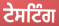
ਟੇਸਟਿੰਗ